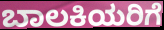
ಬಾಲಕಿಯರಿಗೆ